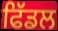
ਫਿੱਡਲ